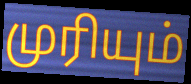
முரியும்